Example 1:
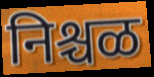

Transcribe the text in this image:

निश्चळ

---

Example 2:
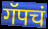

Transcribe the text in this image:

गॅपचं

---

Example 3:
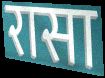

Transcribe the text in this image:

रासा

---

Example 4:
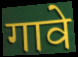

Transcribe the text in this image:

गावे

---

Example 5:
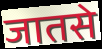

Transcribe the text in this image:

जातसे